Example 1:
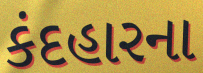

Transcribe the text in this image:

કંદહારના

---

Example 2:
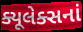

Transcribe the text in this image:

ક્યૂલેક્સનાં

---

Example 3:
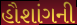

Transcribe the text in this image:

હૌશાંગની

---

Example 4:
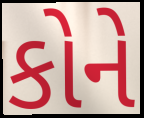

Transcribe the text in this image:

કોને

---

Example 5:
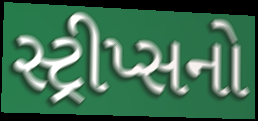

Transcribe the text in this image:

સ્ટ્રીપ્સનો